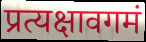
प्रत्यक्षावगमं